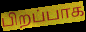
பிறப்பாக